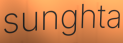
sunghta